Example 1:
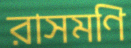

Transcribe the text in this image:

রাসমণি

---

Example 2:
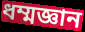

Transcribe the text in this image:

ধম্মজ্ঞান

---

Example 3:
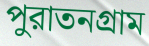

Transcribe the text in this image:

পুরাতনগ্রাম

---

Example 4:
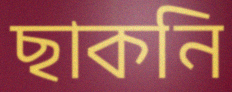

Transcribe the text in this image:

ছাকনি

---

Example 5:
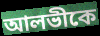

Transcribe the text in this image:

আলভীকে